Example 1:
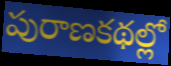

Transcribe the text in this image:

పురాణకథల్లో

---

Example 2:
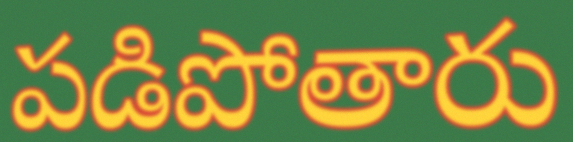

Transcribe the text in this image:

పడిపోతారు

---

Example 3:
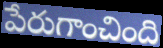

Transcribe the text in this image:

పేరుగాంచింది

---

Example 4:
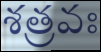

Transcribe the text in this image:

శత్రవః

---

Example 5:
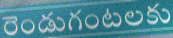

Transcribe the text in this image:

రెండుగంటలకు